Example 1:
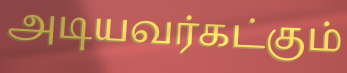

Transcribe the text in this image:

அடியவர்கட்கும்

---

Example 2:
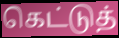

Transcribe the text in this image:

கெட்டுத்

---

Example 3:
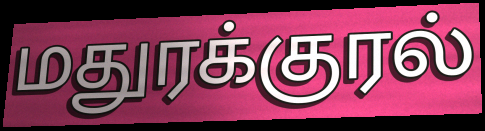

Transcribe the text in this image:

மதுரக்குரல்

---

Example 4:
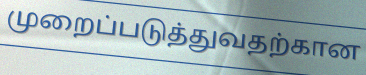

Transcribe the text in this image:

முறைப்படுத்துவதற்கான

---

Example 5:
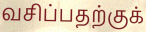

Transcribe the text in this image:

வசிப்பதற்குக்